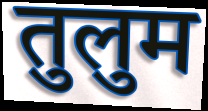
तुलुम